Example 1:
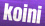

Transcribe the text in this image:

koini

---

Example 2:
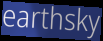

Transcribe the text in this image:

earthsky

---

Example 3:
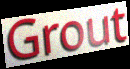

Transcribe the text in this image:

Grout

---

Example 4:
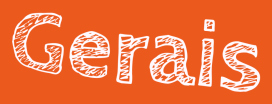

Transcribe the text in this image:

Gerais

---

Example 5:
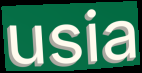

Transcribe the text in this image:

usia